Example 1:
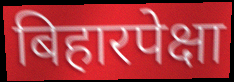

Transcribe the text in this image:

बिहारपेक्षा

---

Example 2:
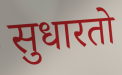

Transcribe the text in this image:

सुधारतो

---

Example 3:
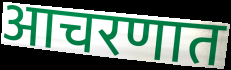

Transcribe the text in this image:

आचरणात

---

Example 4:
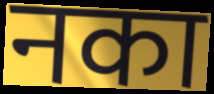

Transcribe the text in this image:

नका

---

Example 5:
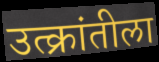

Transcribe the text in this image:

उत्क्रांतीला